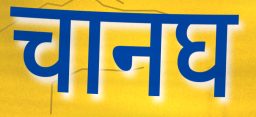
चानघ